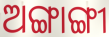
ଅଙ୍ଗାଙ୍ଗୀ